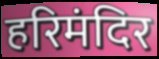
हरिमंदिर